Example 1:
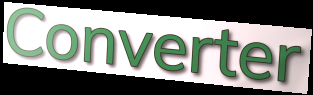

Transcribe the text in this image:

Converter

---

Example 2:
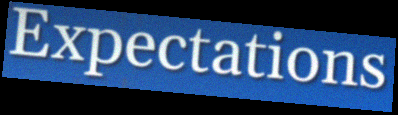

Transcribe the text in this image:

Expectations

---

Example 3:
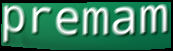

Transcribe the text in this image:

premam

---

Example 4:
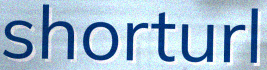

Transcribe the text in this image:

shorturl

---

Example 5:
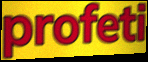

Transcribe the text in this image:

profeti